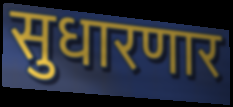
सुधारणार